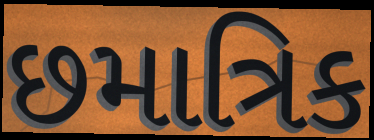
છમાત્રિક